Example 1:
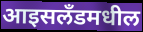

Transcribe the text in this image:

आइसलँडमधील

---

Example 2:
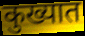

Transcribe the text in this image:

कुख्यात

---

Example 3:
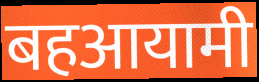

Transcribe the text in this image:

बहआयामी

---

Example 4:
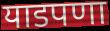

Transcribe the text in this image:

याडपणा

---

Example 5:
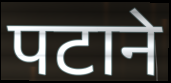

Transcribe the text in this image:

पटाने